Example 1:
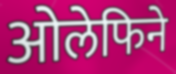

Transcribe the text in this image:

ओलेफिने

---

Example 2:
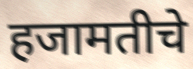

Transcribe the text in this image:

हजामतीचे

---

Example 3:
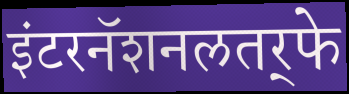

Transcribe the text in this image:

इंटरनॅशनलतर्फे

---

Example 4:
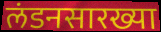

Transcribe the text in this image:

लंडनसारख्या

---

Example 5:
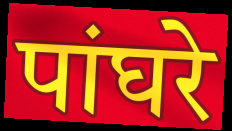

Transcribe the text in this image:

पांघरे